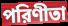
পরিণীতা